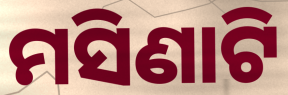
ମସିଣାଟି